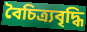
বৈচিত্র্যবৃদ্ধি